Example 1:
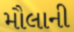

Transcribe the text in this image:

મૌલાની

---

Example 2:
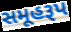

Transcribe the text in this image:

સમૂહરૂપ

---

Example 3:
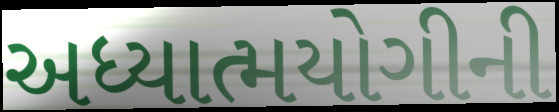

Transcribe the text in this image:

અધ્યાત્મયોગીની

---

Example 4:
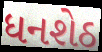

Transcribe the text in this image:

ધનશેઠ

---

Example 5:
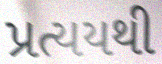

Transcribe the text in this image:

પ્રત્યયથી